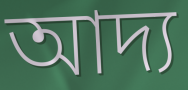
আদ্য